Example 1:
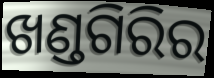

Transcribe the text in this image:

ଖଣ୍ଡଗିରିର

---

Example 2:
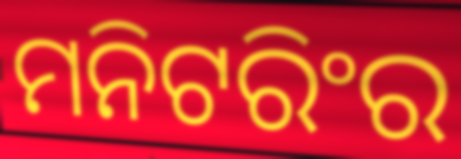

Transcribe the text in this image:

ମନିଟରିଂର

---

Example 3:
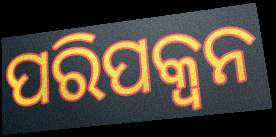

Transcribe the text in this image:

ପରିପକ୍ବନ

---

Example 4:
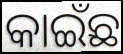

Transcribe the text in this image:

କାଇଁଛ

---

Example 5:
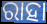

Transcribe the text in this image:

ରାହା